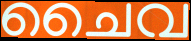
ചൈവ